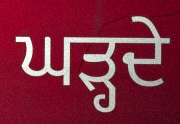
ਘੜ੍ਹਦੇ